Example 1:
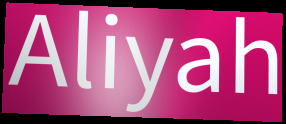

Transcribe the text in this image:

Aliyah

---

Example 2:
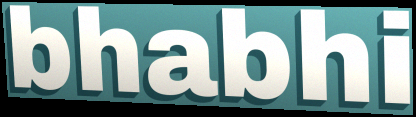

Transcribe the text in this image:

bhabhi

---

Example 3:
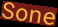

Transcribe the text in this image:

Sone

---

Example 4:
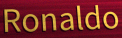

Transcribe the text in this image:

Ronaldo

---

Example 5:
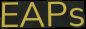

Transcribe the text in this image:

EAPs